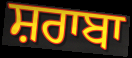
ਸ਼ਰਾਬਾ